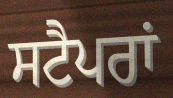
ਸਟੈਪਰਾਂ